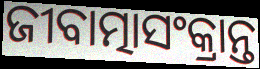
ଜୀବାତ୍ମାସଂକ୍ରାନ୍ତ